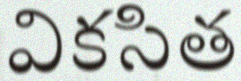
వికసిత